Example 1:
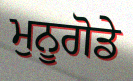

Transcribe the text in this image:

ਮੁਨੂਗੋਡੇ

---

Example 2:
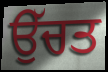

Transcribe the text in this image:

ਉੱਚਤ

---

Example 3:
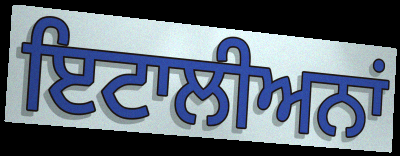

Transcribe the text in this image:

ਇਟਾਲੀਅਨਾਂ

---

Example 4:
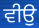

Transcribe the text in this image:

ਵੀਉ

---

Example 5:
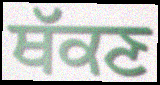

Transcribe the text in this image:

ਥੱਕਣ